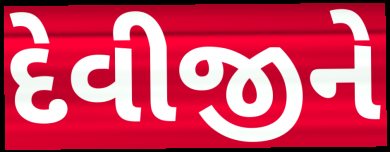
દેવીજીને